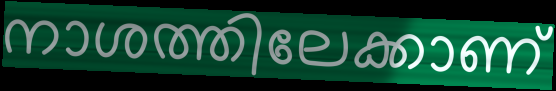
നാശത്തിലേക്കാണ്